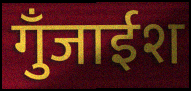
गुँजाईश